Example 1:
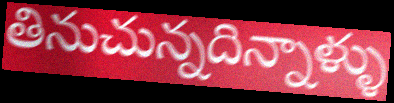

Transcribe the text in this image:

తినుచున్నదిన్నాళ్ళు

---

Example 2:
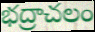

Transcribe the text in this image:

భద్రాచలం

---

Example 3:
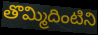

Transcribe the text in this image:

తొమ్మిదింటిని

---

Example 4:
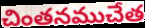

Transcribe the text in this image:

చింతనముచేత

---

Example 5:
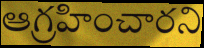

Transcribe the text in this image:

ఆగ్రహించారని